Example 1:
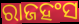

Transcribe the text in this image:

ରାଜହଂସ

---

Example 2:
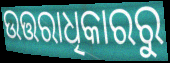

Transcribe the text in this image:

ଉତ୍ତରାଧିକାରରୁ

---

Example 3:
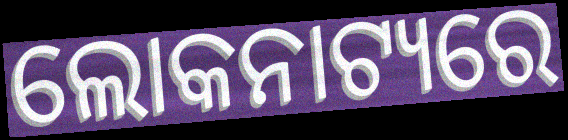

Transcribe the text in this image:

ଲୋକନାଟ୍ୟରେ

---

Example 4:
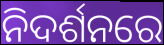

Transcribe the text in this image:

ନିଦର୍ଶନରେ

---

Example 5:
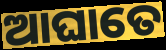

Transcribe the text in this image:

ଆଘାତେ